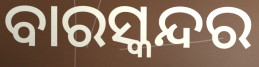
ବାରସ୍କନ୍ଦର